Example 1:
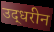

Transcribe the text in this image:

उद्धरीन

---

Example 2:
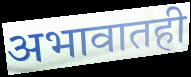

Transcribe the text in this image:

अभावातही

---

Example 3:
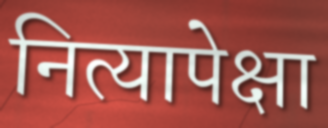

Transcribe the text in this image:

नित्यापेक्षा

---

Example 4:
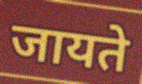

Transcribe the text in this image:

जायते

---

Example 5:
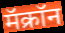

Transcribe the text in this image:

मॅक्रॉन